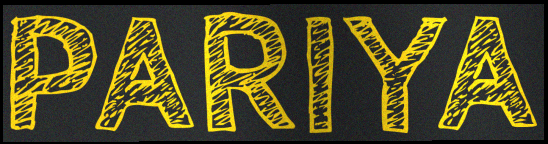
PARIYA